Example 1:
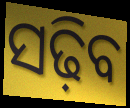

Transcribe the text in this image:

ସଢ଼ିବ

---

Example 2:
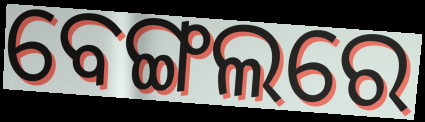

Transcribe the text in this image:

ବେଙ୍ଗଲରେ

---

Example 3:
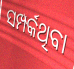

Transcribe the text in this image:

ସମ୍ପର୍କଥିବା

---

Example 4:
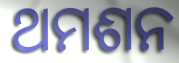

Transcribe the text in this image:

ଥମଶନ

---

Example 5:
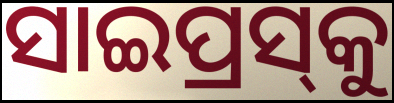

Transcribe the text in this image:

ସାଇପ୍ରସ୍‌କୁ